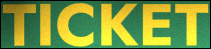
TICKET